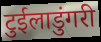
टुईलाडुंगरी